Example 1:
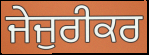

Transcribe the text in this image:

ਜੇਜੁਰੀਕਰ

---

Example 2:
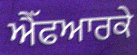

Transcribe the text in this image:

ਐੱਫਆਰਕੇ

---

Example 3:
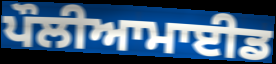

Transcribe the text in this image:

ਪੌਲੀਆਮਾਈਡ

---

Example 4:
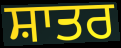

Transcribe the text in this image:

ਸ਼ਾਤਰ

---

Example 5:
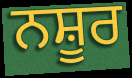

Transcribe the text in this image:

ਨਸ਼ੂਰ